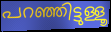
പറഞ്ഞിട്ടുള്ളൂ